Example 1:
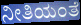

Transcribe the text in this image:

ನೀತಿಯಂತೆ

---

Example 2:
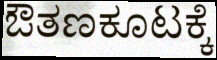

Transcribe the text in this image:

ಔತಣಕೂಟಕ್ಕೆ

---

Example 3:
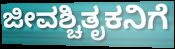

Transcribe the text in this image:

ಜೀವಶ್ಚಿತೃಕನಿಗೆ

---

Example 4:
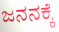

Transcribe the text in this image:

ಜನನಕ್ಕೆ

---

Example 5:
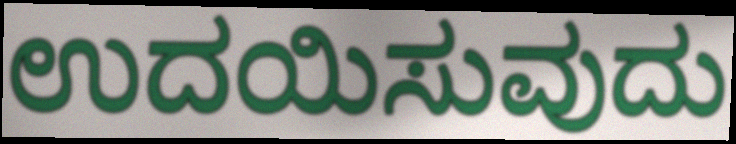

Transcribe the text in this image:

ಉದಯಿಸುವುದು